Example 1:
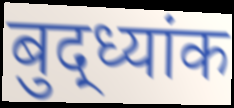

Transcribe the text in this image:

बुद्ध्यांक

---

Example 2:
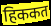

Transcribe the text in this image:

हिककत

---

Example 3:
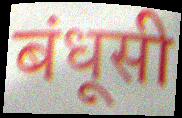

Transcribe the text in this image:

बंधूसी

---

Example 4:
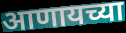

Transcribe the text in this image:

आणायच्या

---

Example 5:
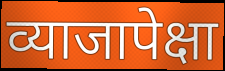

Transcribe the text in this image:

व्याजापेक्षा